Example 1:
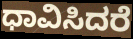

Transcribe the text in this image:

ಧಾವಿಸಿದರೆ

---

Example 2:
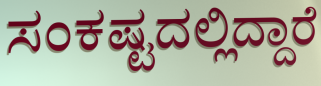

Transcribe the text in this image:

ಸಂಕಷ್ಟದಲ್ಲಿದ್ದಾರೆ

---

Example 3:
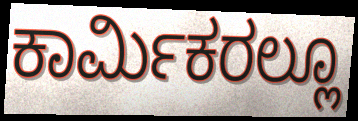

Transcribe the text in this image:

ಕಾರ್ಮಿಕರಲ್ಲೂ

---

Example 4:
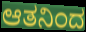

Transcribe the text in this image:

ಆತನಿಂದ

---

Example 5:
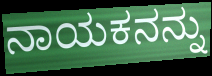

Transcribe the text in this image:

ನಾಯಕನನ್ನು